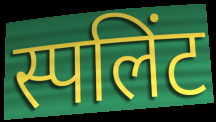
स्पलिंट